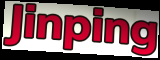
Jinping